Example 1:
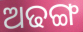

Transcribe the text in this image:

ଅଢଙ୍ଗ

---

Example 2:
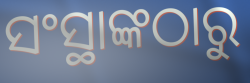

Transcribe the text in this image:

ସଂସ୍ଥାଙ୍କଠାରୁ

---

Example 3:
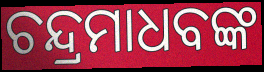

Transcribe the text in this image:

ଚନ୍ଦ୍ରମାଧବଙ୍କ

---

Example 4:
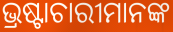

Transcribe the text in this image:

ଭ୍ରଷ୍ଟାଚାରୀମାନଙ୍କ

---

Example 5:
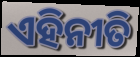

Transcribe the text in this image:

ଏହିନୀତି